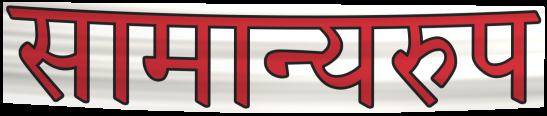
सामान्यरुप